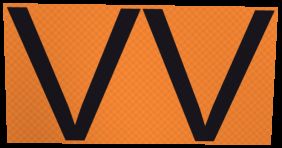
VV